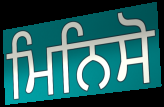
ਮਿਨਿਸੋ